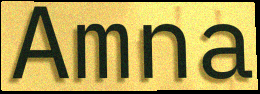
Amna